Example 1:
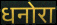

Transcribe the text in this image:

धनोरा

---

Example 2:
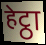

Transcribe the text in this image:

हेट्ठा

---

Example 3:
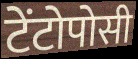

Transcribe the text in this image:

टेंटोपोसी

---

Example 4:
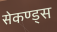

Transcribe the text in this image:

सेकण्ड्स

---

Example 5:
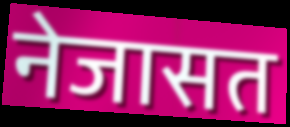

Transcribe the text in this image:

नेजासत